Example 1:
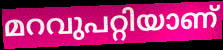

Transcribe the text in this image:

മറവുപറ്റിയാണ്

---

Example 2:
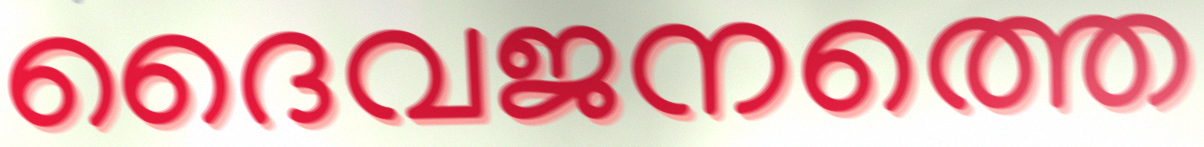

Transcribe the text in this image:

ദൈവജനത്തെ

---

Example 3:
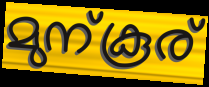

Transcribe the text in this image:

മുന്കൂര്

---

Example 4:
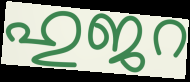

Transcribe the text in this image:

ഹുജറ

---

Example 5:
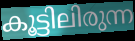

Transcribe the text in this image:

കൂട്ടിലിരുന്ന